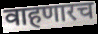
वाहणारच